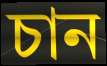
চান